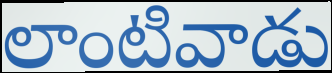
లాంటివాడు